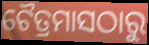
ଚୈତ୍ରମାସଠାରୁ